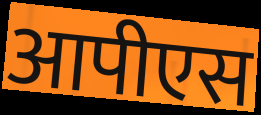
आपीएस